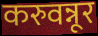
करुवन्नूर